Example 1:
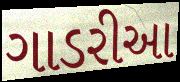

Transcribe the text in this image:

ગાડરીઆ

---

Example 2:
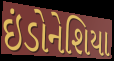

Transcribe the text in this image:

ઇંડોનેશિયા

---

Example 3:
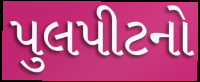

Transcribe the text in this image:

પુલપીટનો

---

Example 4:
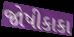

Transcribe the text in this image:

જોષીકાકા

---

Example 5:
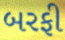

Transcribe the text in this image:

બરફી